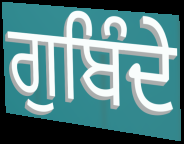
ਗੁਬਿੰਦੇ